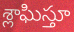
శ్లాఘిస్తూ